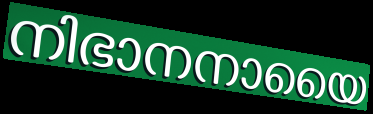
നിഭാനനായൈ